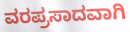
ವರಪ್ರಸಾದವಾಗಿ